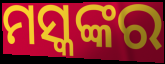
ମସ୍କଙ୍କର